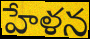
హేళన